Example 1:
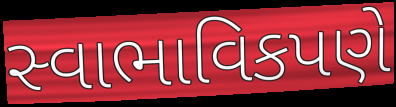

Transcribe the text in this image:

સ્વાભાવિકપણે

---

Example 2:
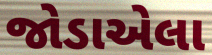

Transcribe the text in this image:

જોડાએલા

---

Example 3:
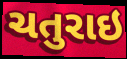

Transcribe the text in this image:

ચતુરાઇ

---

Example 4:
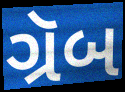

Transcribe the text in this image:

ગ્રૅબ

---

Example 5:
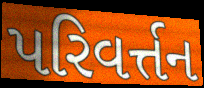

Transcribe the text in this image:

પરિવર્ત્તન